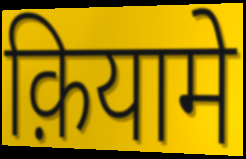
क़ियामे